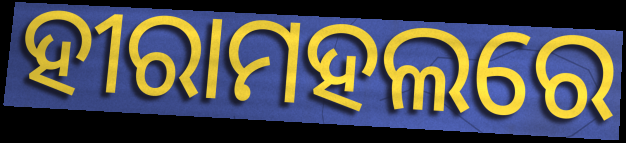
ହୀରାମହଲରେ